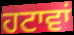
ਹਟਾਵਾਂ